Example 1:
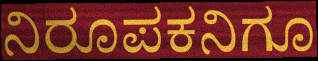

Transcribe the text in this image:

ನಿರೂಪಕನಿಗೂ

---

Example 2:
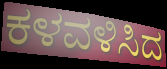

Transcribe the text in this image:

ಕಳವಳಿಸಿದ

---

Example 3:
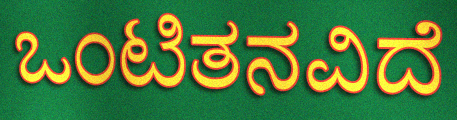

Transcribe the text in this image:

ಒಂಟಿತನವಿದೆ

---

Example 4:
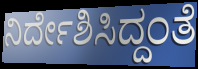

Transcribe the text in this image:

ನಿರ್ದೇಶಿಸಿದ್ದಂತೆ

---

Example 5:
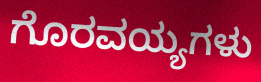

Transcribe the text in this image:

ಗೊರವಯ್ಯಗಳು